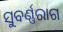
ସୁବର୍ଣ୍ଣରାଗ